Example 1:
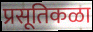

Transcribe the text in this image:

प्रसूतिकळा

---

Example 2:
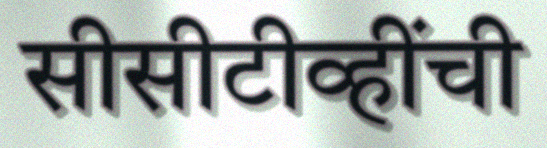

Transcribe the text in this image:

सीसीटीव्हींची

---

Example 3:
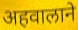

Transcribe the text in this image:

अहवालाने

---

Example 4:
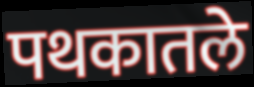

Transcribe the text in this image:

पथकातले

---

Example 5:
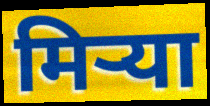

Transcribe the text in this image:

मिऱ्या